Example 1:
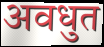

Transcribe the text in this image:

अवधुत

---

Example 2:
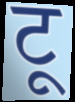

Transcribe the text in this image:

टू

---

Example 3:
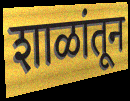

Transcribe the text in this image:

शाळांतून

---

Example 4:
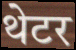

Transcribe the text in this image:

थेटर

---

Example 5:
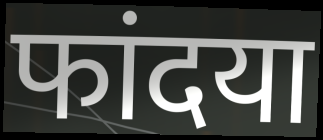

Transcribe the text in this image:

फांदया